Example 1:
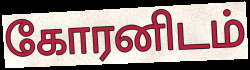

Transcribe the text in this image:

கோரனிடம்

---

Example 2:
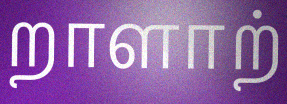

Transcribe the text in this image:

றாளாற்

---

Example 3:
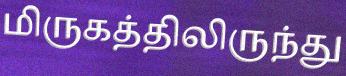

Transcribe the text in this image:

மிருகத்திலிருந்து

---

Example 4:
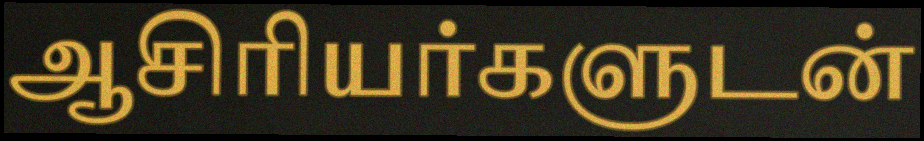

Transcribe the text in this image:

ஆசிரியர்களுடன்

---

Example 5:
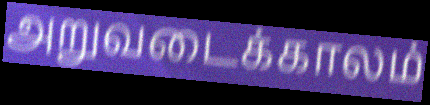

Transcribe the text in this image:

அறுவடைக்காலம்